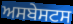
ਅਸਬੇਸਟਸ